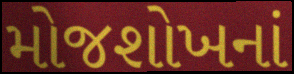
મોજશોખનાં